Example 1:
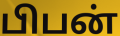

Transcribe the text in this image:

பிபன்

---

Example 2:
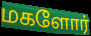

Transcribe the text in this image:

மகளோர்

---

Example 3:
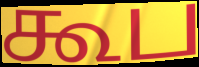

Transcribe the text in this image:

கூப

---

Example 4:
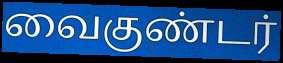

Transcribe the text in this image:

வைகுண்டர்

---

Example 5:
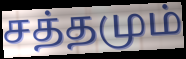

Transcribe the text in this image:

சத்தமும்